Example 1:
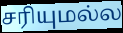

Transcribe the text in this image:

சரியுமல்ல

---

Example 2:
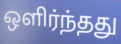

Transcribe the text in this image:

ஒளிர்ந்தது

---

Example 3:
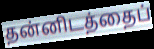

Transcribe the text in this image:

தன்னிடத்தைப்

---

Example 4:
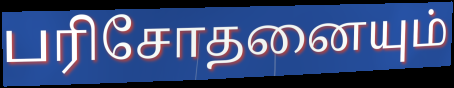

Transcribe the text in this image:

பரிசோதனையும்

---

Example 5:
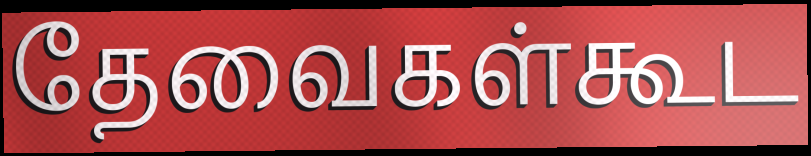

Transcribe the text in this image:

தேவைகள்கூட